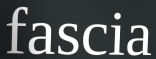
fascia